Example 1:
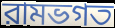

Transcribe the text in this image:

রামভগত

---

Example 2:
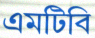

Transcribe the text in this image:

এমটিবি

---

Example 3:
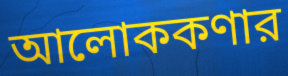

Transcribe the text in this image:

আলোককণার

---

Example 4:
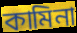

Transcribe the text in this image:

কামিনা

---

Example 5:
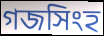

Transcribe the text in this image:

গজসিংহ